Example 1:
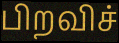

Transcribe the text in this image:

பிறவிச்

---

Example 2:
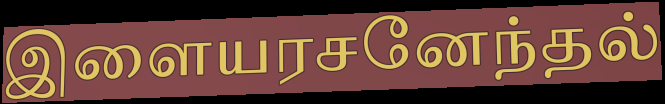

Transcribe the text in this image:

இளையரசனேந்தல்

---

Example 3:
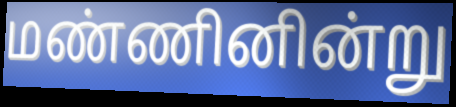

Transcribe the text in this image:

மண்ணினின்று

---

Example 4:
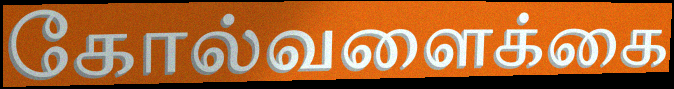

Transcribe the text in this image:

கோல்வளைக்கை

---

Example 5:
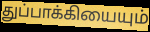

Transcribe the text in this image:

துப்பாக்கியையும்